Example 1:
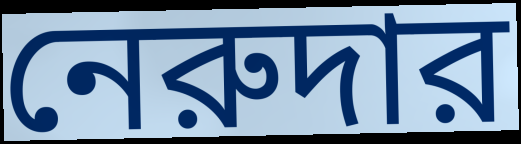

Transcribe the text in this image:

নেরুদার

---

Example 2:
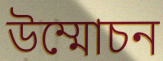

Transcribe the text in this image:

উম্মোচন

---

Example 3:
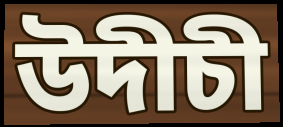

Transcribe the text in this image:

উদীচী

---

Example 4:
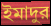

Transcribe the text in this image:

ইমাদুর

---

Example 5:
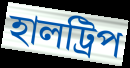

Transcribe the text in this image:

হালট্রিপ